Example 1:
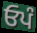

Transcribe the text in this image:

ਓਪੰ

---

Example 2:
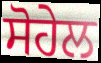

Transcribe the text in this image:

ਸੋਹੇਲ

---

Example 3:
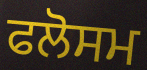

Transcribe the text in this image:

ਫਲੋਸਮ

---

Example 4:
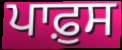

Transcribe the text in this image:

ਪਾਫ਼ੁਸ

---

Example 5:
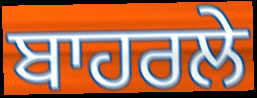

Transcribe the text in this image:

ਬਾਹਰਲੇ